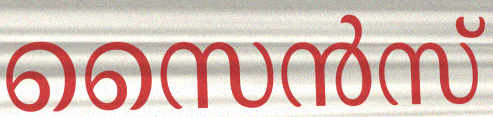
സൈൻസ്